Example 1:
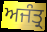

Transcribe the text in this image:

ਅਜੰਤ੍ਰ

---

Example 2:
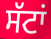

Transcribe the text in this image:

ਸੱਟਾਂ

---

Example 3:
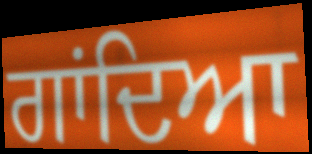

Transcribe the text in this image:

ਗਾਂਦਿਆ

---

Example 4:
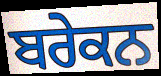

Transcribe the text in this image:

ਬਰੇਕਨ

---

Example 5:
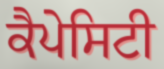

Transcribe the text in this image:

ਕੈਪੇਸਿਟੀ